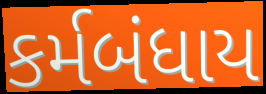
કર્મબંધાય